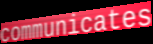
communicates